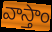
వాస్తాం